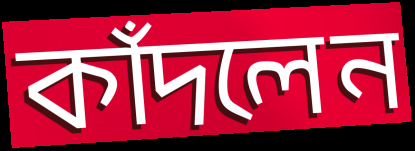
কাঁদলেন